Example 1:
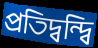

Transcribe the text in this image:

প্রতিদ্বন্দ্বি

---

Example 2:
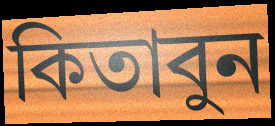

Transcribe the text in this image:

কিতাবুন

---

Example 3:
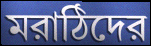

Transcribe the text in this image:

মরাঠিদের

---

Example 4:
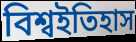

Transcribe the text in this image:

বিশ্বইতিহাস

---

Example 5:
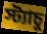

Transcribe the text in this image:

স্ট্যাচু